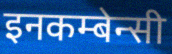
इनकम्बेन्सी